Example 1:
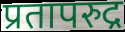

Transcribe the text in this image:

प्रतापरुद्र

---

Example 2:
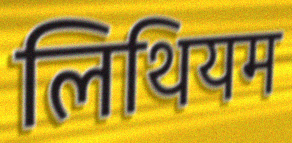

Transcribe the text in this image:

लिथियम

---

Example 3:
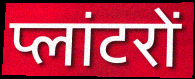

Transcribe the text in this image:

प्लांटरों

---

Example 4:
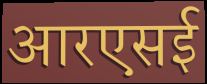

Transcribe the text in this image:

आरएसई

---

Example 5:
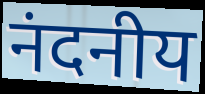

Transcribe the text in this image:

नंदनीय